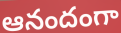
ఆనందంగా